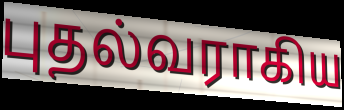
புதல்வராகிய